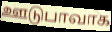
ஊடுபாவாக